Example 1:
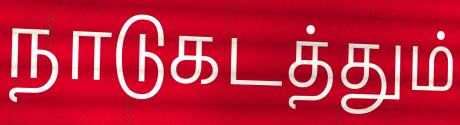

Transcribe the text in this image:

நாடுகடத்தும்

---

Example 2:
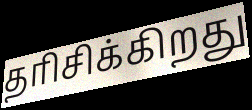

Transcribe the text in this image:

தரிசிக்கிறது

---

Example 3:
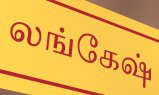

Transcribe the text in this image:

லங்கேஷ்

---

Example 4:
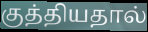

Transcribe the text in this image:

குத்தியதால்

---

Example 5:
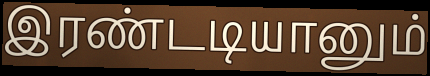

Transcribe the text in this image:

இரண்டடியானும்